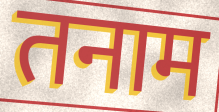
तनाम